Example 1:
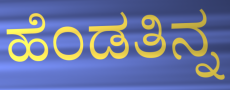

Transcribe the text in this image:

ಹೆಂಡತಿನ್ನ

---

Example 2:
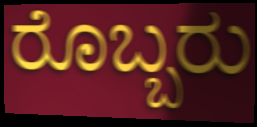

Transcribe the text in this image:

ರೊಬ್ಬರು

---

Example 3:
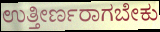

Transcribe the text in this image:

ಉತ್ತೀರ್ಣರಾಗಬೇಕು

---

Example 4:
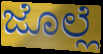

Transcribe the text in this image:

ಜೊಲ್ಲೆ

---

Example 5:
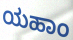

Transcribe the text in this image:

ಯಹಾಂ